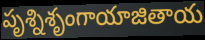
పృశ్నిశృంగాయాజితాయ